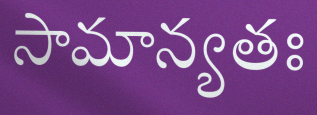
సామాన్యతః